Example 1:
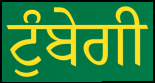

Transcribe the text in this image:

ਟੁੰਬੇਗੀ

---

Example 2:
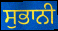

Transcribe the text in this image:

ਸੁਭਾਨੀ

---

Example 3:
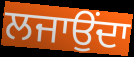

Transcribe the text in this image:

ਲਜਾਉਂਦਾ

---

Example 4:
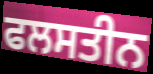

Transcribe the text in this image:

ਫਲਸਤੀਨ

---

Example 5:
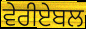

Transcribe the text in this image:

ਵੇਰੀਏਬਲ